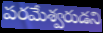
పరమేశ్వరుడని